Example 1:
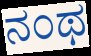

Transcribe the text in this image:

ನಂಥ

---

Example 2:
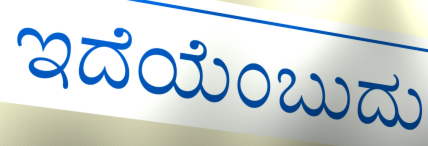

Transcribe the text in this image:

ಇದೆಯೆಂಬುದು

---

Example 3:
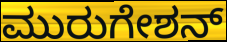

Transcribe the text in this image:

ಮುರುಗೇಶನ್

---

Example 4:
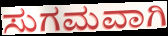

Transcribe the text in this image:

ಸುಗಮವಾಗಿ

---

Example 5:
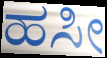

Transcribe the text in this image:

ಹಸೀ